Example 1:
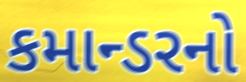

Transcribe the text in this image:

કમાન્ડરનો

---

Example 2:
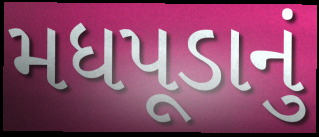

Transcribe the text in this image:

મધપૂડાનું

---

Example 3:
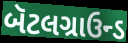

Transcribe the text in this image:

બૅટલગ્રાઉન્ડ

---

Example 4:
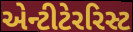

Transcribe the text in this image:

એન્ટીટેરરિસ્ટ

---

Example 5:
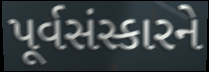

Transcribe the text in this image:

પૂર્વસંસ્કારને